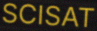
SCISAT